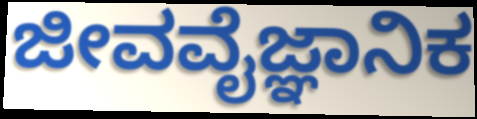
ಜೀವವೈಜ್ಞಾನಿಕ